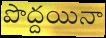
పొద్దయినా